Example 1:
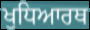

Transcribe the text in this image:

ਖੁਧਿਆਰਥ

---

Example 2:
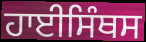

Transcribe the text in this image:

ਹਾਈਸਿੰਥਸ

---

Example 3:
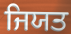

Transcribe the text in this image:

ਜਿਯਤ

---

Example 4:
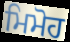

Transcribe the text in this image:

ਮਿਮੋਹ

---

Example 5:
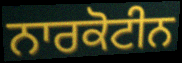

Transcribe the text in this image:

ਨਾਰਕੋਟੀਨ